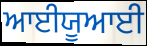
ਆਈਯੂਆਈ